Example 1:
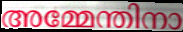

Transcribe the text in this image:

അമ്മേന്തിനാ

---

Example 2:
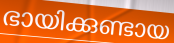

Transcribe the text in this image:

ഭായിക്കുണ്ടായ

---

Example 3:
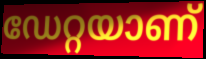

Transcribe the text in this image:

ഡേറ്റയാണ്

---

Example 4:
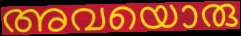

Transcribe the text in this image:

അവയൊരു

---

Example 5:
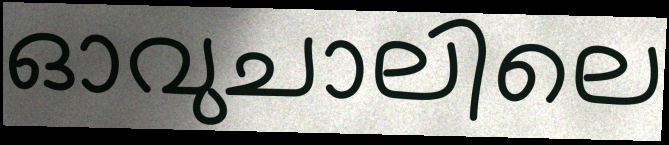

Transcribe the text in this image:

ഓവുചാലിലെ